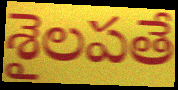
శైలపతే